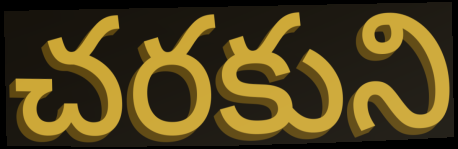
చరకుని